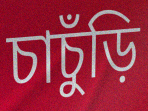
চাচুঁড়ি